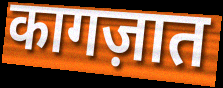
कागज़ात